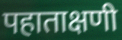
पहाताक्षणी